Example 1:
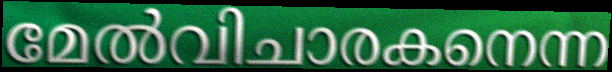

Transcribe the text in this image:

മേൽവിചാരകനെന്ന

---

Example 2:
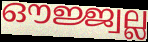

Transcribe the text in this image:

ഔജ്ജ്വല്ല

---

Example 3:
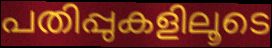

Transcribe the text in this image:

പതിപ്പുകളിലൂടെ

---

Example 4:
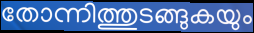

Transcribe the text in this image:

തോന്നിത്തുടങ്ങുകയും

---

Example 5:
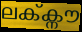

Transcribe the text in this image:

ലക്ക്നൗ